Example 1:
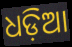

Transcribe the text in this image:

ଧଡ଼ିଆ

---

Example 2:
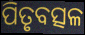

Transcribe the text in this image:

ପିତୃବତ୍ସଳ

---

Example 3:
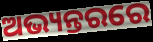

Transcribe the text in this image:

ଅଭ୍ୟନ୍ତରରେ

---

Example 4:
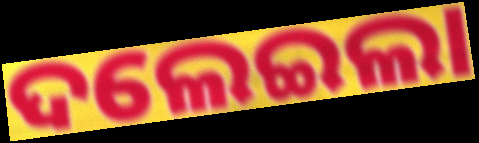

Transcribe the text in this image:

ଦଲେଇଲା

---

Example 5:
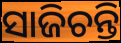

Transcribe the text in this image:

ସାଜିଚନ୍ତି